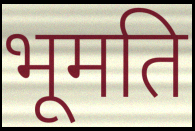
भूमति